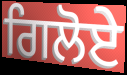
ਗਿਲੋਏ